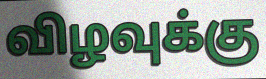
விழவுக்கு